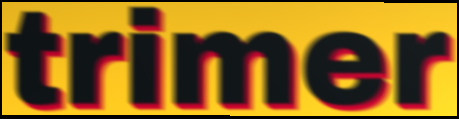
trimer